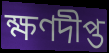
ক্ষণদীপ্ত